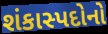
શંકાસ્પદોનો